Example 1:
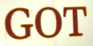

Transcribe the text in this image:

GOT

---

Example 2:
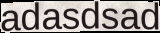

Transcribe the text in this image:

adasdsad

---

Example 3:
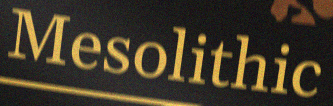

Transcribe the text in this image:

Mesolithic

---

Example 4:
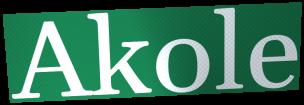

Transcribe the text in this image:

Akole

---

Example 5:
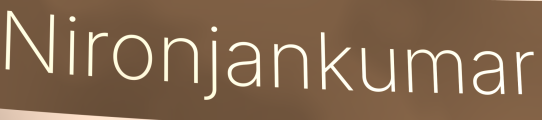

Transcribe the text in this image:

Nironjankumar